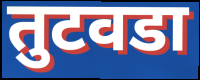
तुटवडा